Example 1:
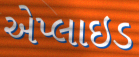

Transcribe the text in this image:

એપ્લાઇડ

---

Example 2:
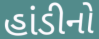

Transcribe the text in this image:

હાંડીનો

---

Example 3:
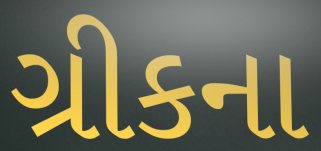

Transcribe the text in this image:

ગ્રીકના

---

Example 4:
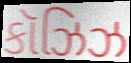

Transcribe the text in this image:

કૉઝિઝ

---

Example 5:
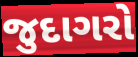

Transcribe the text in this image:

જુદાગરો